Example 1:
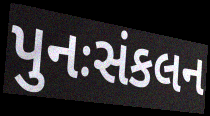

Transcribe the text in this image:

પુનઃસંકલન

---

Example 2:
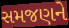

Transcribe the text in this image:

સમજણને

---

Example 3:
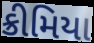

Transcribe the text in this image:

ક્રીમિયા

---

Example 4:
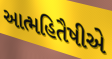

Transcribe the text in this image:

આત્મહિતૈષીએ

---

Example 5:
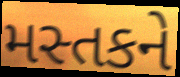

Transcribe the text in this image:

મસ્તકને